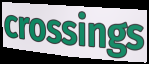
crossings